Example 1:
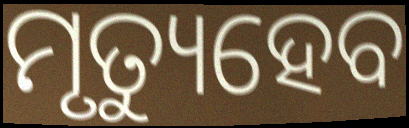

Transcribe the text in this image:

ମୃତ୍ୟୁହେବ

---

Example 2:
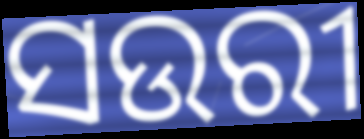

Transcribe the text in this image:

ସଉରୀ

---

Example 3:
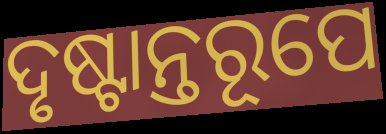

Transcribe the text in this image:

ଦୃଷ୍ଟାନ୍ତରୂପେ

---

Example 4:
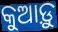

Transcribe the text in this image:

କୁଆଡ଼ୁ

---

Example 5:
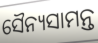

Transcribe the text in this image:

ସୈନ୍ୟସାମନ୍ତ